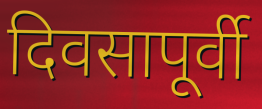
दिवसापूर्वी